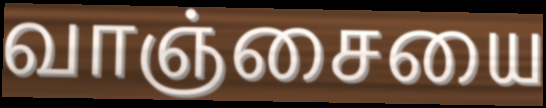
வாஞ்சையை